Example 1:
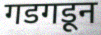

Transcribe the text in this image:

गडगडून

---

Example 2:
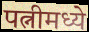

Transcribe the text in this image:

पत्नीमध्ये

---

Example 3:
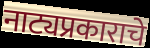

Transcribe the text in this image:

नाट्यप्रकाराचे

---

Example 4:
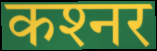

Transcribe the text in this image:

कश्‍नर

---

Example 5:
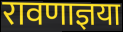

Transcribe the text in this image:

रावणाज्ञया